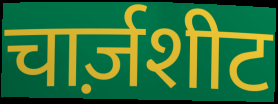
चार्ज़शीट